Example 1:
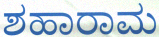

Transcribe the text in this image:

ಶಹಾರಾಮ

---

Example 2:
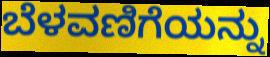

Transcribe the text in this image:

ಬೆಳವಣಿಗೆಯನ್ನು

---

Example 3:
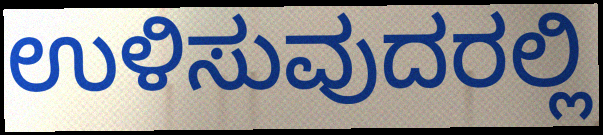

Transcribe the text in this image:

ಉಳಿಸುವುದರಲ್ಲಿ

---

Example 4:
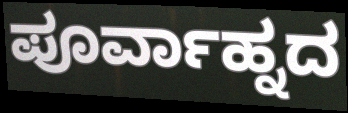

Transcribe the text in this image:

ಪೂರ್ವಾಹ್ನದ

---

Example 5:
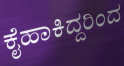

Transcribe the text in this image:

ಕೈಹಾಕಿದ್ದರಿಂದ